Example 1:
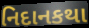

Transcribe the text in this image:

નિદાનકથા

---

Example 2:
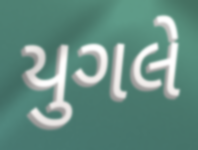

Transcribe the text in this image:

યુગલે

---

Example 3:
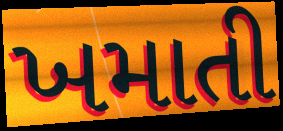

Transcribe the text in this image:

ખમાતી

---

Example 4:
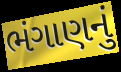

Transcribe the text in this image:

ભંગાણનું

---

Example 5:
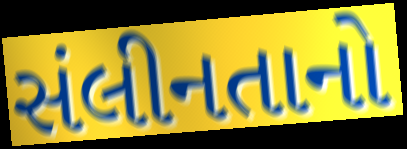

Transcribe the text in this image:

સંલીનતાનો